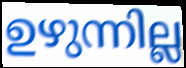
ഉഴുന്നില്ല